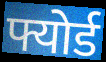
फ्योर्ड